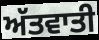
ਅੱਤਵਾਤੀ